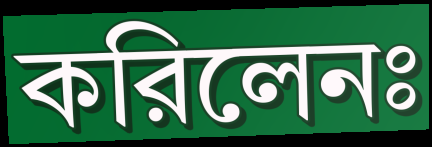
করিলেনঃ